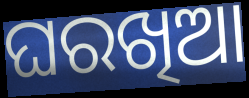
ଘରଖିଆ